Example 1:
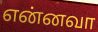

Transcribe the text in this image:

என்னவா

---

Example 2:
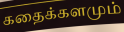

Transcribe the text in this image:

கதைக்களமும்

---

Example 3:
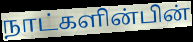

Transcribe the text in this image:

நாட்களின்பின்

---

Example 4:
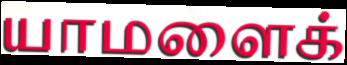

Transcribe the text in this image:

யாமளைக்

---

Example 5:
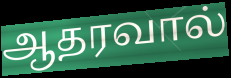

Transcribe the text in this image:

ஆதரவால்